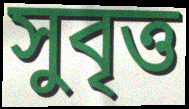
সুবৃত্ত